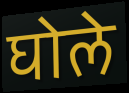
घोले